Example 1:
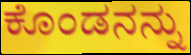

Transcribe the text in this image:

ಕೊಂಡನನ್ನು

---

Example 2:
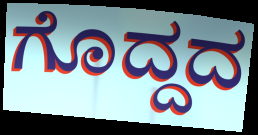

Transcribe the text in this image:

ಗೊದ್ದದ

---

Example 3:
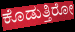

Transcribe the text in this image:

ಕೊಡುತ್ತಿರೋ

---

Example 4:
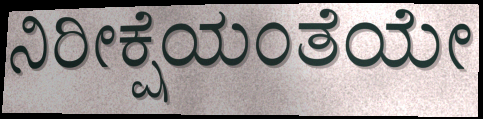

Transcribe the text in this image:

ನಿರೀಕ್ಷೆಯಂತೆಯೇ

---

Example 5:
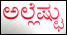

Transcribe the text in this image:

ಅಲ್ಲೆಷ್ಟು